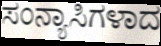
ಸಂನ್ಯಾಸಿಗಳಾದ